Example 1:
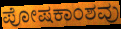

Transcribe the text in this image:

ಪೋಷಕಾಂಶವು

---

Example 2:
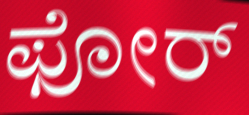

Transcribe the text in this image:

ಫೋರ್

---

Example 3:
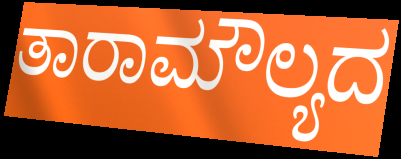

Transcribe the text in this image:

ತಾರಾಮೌಲ್ಯದ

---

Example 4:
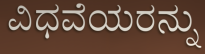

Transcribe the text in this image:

ವಿಧವೆಯರನ್ನು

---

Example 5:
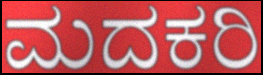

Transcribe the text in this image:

ಮದಕರಿ